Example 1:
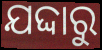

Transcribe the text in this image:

ଯଦ୍ଦାରୁ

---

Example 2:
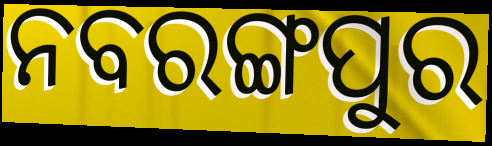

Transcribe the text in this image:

ନବରଙ୍ଗପୁର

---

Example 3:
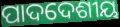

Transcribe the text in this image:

ପାଦଦେଶୀୟ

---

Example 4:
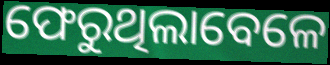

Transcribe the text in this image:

ଫେରୁଥିଲାବେଳେ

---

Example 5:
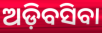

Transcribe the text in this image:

ଅଡ଼ିବସିବା